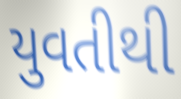
યુવતીથી